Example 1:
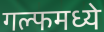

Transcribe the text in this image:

गल्फमध्ये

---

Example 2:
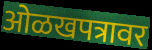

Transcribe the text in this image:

ओळखपत्रावर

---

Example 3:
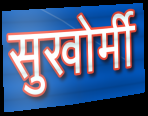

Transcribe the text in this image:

सुखोर्मी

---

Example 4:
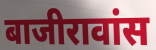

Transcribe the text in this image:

बाजीरावांस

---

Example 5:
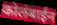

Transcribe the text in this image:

कोलंबाईन